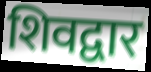
शिवद्वार